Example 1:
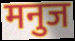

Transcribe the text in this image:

मनुज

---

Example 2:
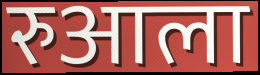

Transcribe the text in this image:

रुआला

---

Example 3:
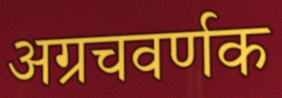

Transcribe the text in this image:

अग्रचवर्णक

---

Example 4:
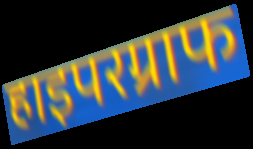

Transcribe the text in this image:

हाइपरग्राफ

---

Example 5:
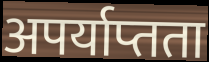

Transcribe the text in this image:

अपर्याप्‍तता